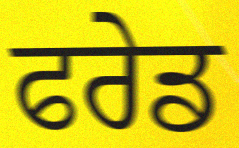
ਫਰੇਡ